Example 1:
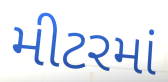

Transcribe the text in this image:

મીટરમાં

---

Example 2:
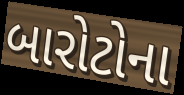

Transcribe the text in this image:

બારોટોના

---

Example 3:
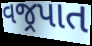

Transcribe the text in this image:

વજ્રપાત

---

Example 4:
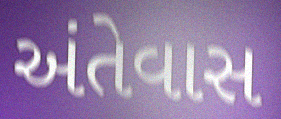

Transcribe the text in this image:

અંતેવાસ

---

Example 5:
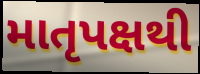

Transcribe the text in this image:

માતૃપક્ષથી